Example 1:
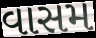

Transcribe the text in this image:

વાસમ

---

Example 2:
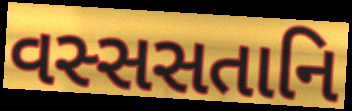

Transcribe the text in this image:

વસ્સસતાનિ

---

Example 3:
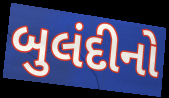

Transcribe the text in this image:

બુલંદીનો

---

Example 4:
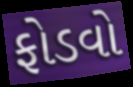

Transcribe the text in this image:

ફોડવો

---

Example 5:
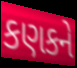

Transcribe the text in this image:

કણકને